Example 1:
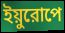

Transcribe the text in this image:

ইয়ুরোপে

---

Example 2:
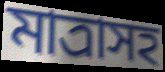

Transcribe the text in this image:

মাত্রাসহ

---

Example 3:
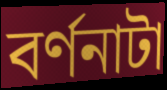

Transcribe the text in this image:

বর্ণনাটা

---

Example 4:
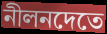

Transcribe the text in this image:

নীলনদেতে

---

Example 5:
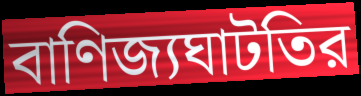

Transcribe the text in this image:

বাণিজ্যঘাটতির